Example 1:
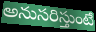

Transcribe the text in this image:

అనుసరిస్తుంటే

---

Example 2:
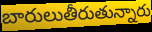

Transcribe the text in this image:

బారులుతీరుతున్నారు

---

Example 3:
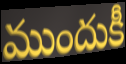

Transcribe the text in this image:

ముందుకీ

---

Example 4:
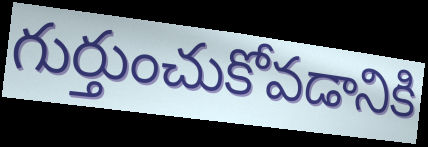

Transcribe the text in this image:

గుర్తుంచుకోవడానికి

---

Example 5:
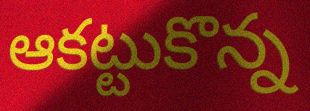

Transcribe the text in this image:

ఆకట్టుకొన్న